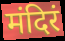
मंदिरं